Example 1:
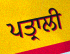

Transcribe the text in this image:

ਪਤ੍ਰਾਲੀ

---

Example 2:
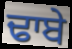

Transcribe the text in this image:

ਢਾਬੇ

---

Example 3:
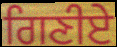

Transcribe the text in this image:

ਗਿਣੀਏ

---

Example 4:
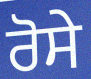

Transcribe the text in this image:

ਰੋਸੇ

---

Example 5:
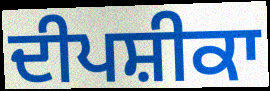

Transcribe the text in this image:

ਦੀਪਸ਼ੀਕਾ